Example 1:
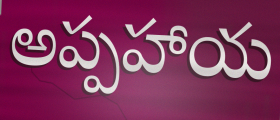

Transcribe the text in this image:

అప్పహాయ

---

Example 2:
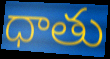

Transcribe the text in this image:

ధాతు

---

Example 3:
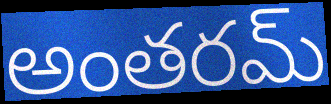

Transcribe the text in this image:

అంతరమ్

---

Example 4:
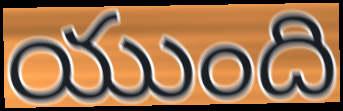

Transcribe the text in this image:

యుంది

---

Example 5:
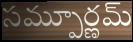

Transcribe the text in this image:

సమ్పూర్ణమ్